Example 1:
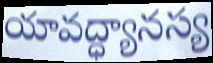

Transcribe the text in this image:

యావద్ధ్యానస్య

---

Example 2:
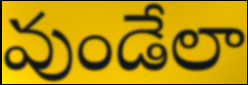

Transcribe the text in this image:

వుండేలా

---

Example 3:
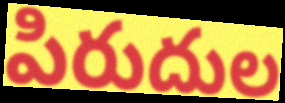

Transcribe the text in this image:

పిరుదుల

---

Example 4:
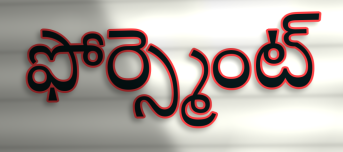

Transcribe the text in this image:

ఫోర్స్మెంట్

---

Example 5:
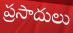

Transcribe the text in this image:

ప్రసాదులు